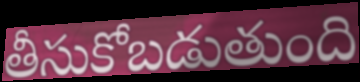
తీసుకోబడుతుంది